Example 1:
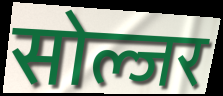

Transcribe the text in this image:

सोल्जर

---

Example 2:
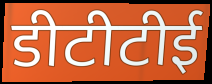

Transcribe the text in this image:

डीटीटीई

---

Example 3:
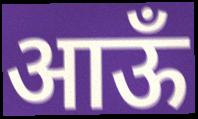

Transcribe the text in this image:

आऊँ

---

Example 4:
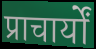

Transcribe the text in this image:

प्राचार्यों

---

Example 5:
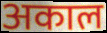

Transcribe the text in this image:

अकाल